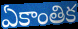
ఏకాంతిక